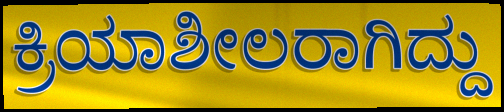
ಕ್ರಿಯಾಶೀಲರಾಗಿದ್ದು